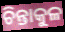
ଚିନ୍ତାକୁଳ